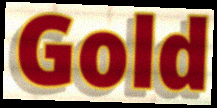
Gold